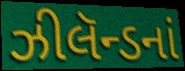
ઝીલૅન્ડનાં